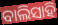
ବାଲିସାହି